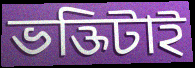
ভক্তিটাই